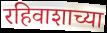
रहिवाशाच्या